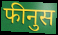
फीनुस